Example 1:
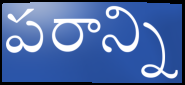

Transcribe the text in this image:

పరాన్ని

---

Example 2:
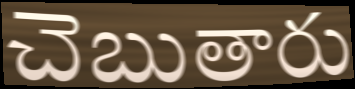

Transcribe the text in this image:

చెబుతారు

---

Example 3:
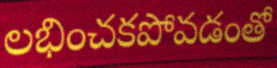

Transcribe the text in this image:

లభించకపోవడంతో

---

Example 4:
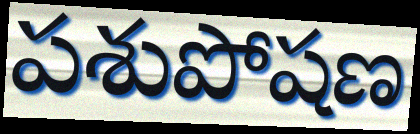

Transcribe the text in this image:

పశుపోషణ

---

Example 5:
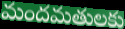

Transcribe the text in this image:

మందమతులకు